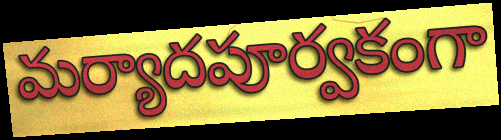
మర్యాదపూర్వకంగా